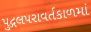
પુદ્ગલપરાવર્તકાળમાં